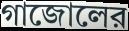
গাজোলের